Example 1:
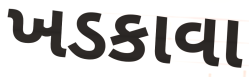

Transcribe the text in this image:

ખડકાવા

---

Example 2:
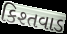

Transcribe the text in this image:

કિશ્તવાડ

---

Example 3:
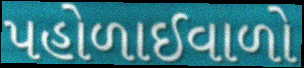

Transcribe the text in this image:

પહોળાઈવાળો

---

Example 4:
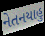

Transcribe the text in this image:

નેતનયાહુ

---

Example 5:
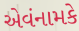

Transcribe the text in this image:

એવંનામકે